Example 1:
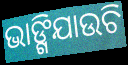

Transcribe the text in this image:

ଭାଙ୍ଗିଯାଉଚି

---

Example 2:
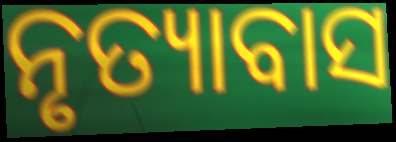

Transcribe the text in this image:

ନୃତ୍ୟାବାସ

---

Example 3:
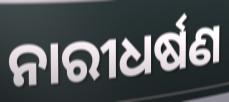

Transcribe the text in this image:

ନାରୀଧର୍ଷଣ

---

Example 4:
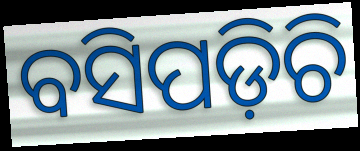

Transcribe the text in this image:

ବସିପଡ଼ିଚି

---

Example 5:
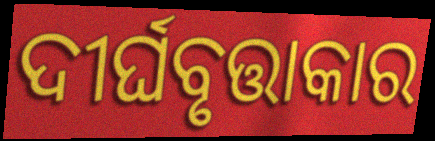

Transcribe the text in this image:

ଦୀର୍ଘବୃତ୍ତାକାର